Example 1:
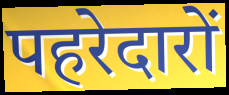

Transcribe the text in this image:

पहरेदारों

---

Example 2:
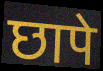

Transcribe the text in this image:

छापे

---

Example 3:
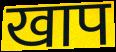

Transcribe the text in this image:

खाप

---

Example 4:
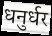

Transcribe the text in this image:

धनुर्धर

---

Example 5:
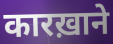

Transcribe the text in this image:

कारख़ाने